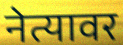
नेत्यावर